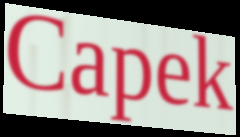
Capek